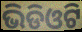
ଭିଡିଓଟି